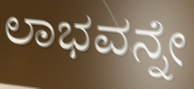
ಲಾಭವನ್ನೇ